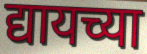
द्यायच्या